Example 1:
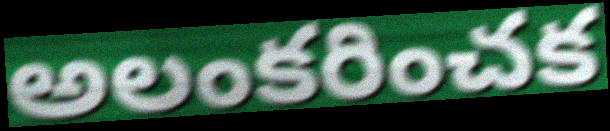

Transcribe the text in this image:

అలంకరించక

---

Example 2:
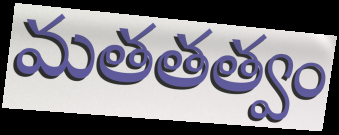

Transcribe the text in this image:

మతతత్వం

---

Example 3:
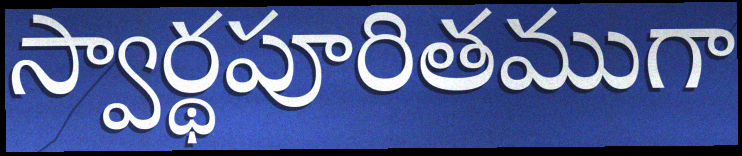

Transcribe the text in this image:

స్వార్థపూరితముగా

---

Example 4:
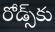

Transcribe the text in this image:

రోడ్స్‌కు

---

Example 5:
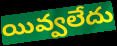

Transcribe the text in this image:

యివ్వలేదు